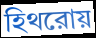
হিথরোয়